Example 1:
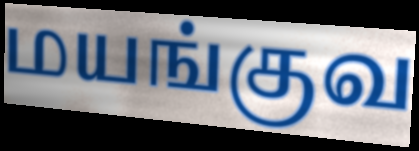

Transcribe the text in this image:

மயங்குவ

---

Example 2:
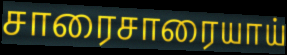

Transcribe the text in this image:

சாரைசாரையாய்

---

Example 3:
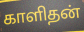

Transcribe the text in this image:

காளிதன்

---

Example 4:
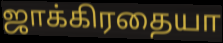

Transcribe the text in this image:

ஜாக்கிரதையா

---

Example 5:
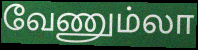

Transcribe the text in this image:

வேணும்லா